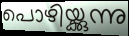
പൊഴിയ്ക്കുന്നു